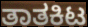
ತಾತಕಿಟ